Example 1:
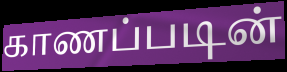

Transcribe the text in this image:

காணப்படின்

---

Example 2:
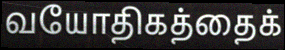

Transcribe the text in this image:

வயோதிகத்தைக்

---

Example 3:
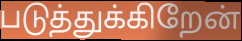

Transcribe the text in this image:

படுத்துக்கிறேன்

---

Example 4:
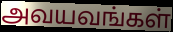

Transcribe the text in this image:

அவயவங்கள்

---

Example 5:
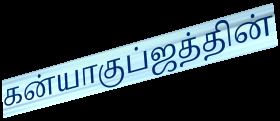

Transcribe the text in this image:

கன்யாகுப்ஜத்தின்